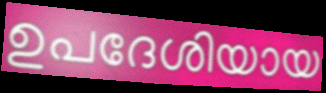
ഉപദേശിയായ